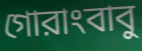
গোরাংবাবু